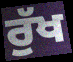
ਰੁੱਖ